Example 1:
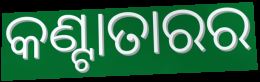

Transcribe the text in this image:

କଣ୍ଟାତାରର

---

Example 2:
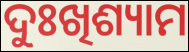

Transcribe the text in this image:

ଦୁଃଖିଶ୍ୟାମ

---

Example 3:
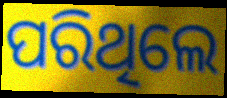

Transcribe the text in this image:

ପରିଥିଲେ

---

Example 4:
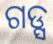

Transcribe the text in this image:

ଗଡ୍ସ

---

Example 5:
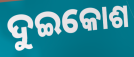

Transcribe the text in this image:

ଦୁଇକୋଶ